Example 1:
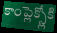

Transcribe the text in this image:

కాంప్లెక్స్లోకి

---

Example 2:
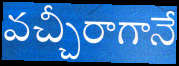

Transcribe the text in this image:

వచ్చీరాగానే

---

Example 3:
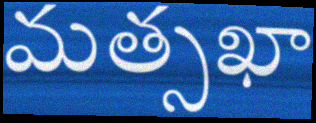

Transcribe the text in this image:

మత్సఖా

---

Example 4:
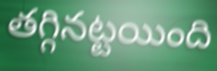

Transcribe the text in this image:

తగ్గినట్టయింది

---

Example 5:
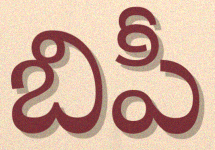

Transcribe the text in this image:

బిపీ